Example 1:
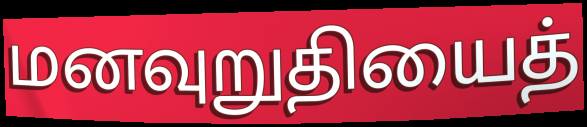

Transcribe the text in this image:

மனவுறுதியைத்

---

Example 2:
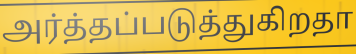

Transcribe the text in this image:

அர்த்தப்படுத்துகிறதா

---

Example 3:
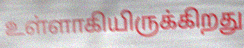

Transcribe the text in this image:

உள்ளாகியிருக்கிறது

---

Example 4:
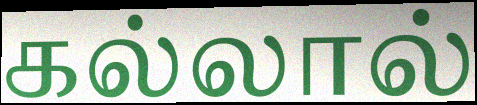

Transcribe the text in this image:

கல்லால்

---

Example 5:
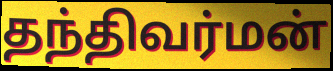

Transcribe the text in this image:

தந்திவர்மன்